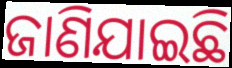
ଜାଣିଯାଇଛି